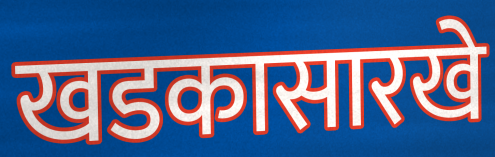
खडकासारखे